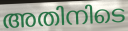
അതിനിടെ